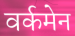
वर्कमेन